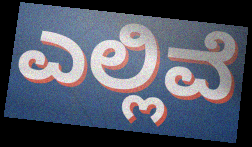
ಎಲ್ಲಿವೆ